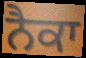
ਨੈਕਾ